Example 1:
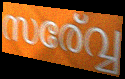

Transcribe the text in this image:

സര്വ്വേ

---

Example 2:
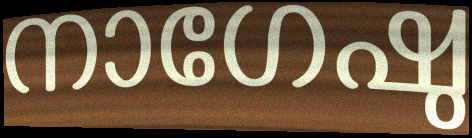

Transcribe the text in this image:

നാഗേഷു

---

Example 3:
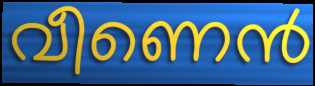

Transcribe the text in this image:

വീണെൻ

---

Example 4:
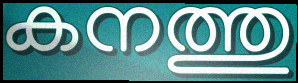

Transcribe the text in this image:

കനത്തു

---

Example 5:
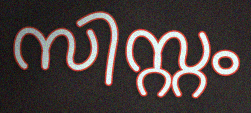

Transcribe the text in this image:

സിസ്റ്റം